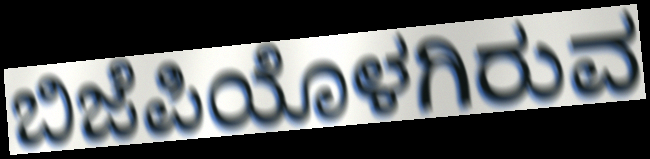
ಬಿಜೆಪಿಯೊಳಗಿರುವ